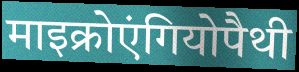
माइक्रोएंगियोपैथी